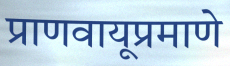
प्राणवायूप्रमाणे